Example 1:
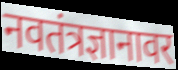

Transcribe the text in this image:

नवतंत्रज्ञानावर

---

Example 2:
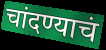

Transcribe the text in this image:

चांदण्याचं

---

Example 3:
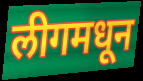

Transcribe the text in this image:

लीगमधून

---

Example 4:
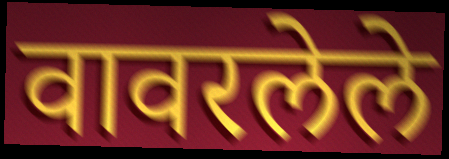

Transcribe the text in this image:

वावरलेले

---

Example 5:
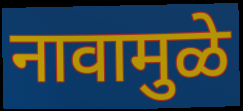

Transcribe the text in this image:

नावामुळे